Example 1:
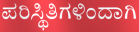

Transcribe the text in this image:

ಪರಿಸ್ಥಿತಿಗಳಿಂದಾಗಿ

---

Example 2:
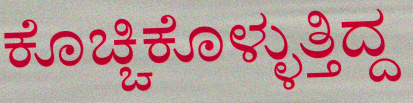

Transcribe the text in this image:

ಕೊಚ್ಚಿಕೊಳ್ಳುತ್ತಿದ್ದ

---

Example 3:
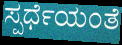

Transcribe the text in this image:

ಸ್ಪರ್ಧೆಯಂತೆ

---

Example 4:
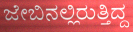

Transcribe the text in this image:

ಜೇಬಿನಲ್ಲಿರುತ್ತಿದ್ದ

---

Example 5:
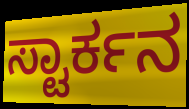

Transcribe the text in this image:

ಸ್ಟಾರ್ಕನ